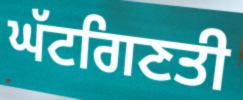
ਘੱਟਗਿਣਤੀ